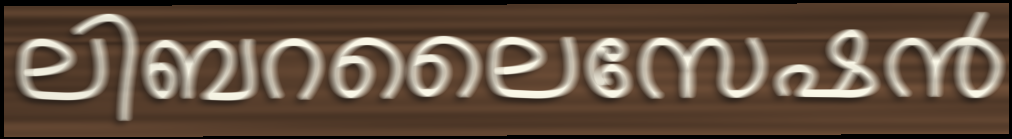
ലിബറലൈസേഷൻ